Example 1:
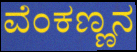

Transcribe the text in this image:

ವೆಂಕಣ್ಣನ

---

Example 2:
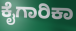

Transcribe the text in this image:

ಕೈಗಾರಿಕಾ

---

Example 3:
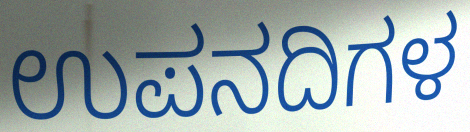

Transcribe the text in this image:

ಉಪನದಿಗಳ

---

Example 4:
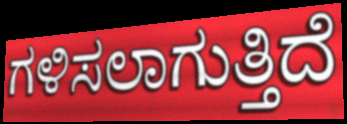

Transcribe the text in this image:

ಗಳಿಸಲಾಗುತ್ತಿದೆ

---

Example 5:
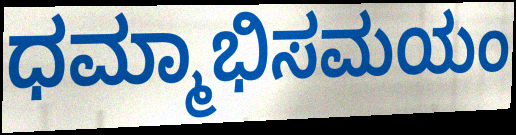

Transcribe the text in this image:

ಧಮ್ಮಾಭಿಸಮಯಂ